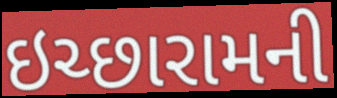
ઇચ્છારામની